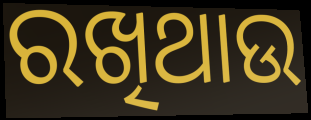
ରଖିଥାଉ